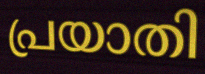
പ്രയാതി